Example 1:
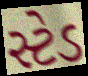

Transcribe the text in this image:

સ્ટેડ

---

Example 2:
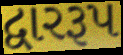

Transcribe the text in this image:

દ્વારરૂપ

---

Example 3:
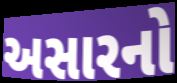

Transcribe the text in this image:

અસારનો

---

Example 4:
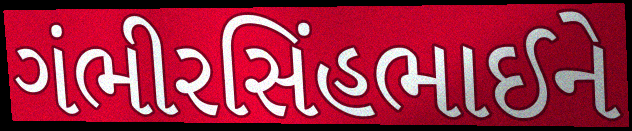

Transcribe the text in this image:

ગંભીરસિંહભાઈને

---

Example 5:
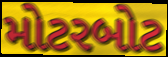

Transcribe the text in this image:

મોટરબોટ